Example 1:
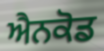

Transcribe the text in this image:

ਐਨਕੋਡ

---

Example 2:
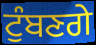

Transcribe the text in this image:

ਟੁੰਬਣਗੇ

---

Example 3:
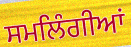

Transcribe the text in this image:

ਸਮਲਿੰਗੀਆਂ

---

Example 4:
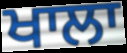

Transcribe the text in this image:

ਖਾਲਾ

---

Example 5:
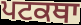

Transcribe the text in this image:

ਪਟਕਥਾ